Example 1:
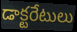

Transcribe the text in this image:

డాక్టరేటులు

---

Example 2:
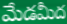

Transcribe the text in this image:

మేడమీద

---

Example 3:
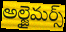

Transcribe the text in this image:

అల్జైమర్స్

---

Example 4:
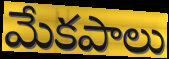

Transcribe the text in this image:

మేకపాలు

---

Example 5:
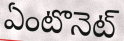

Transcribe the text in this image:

ఏంటొనెట్